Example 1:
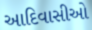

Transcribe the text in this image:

આદિવાસીઓ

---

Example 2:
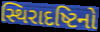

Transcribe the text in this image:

સ્થિરાદષ્ટિનો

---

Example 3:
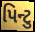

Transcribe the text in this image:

પિન્ટુ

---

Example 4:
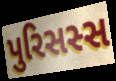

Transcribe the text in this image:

પુરિસસ્સ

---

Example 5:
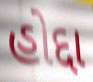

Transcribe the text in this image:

હોદ્દા